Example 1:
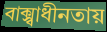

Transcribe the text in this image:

বাক্স্বাধীনতায়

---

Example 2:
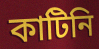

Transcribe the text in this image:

কাটিনি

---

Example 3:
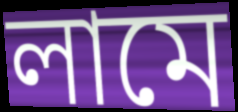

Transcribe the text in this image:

লামে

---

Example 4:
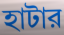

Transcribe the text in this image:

হাটার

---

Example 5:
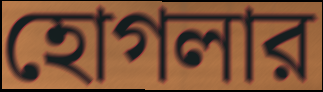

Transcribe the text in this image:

হোগলার